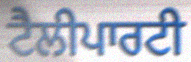
ਟੈਲੀਪਾਰਟੀ